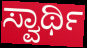
ಸ್ವಾರ್ಥಿ